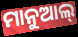
ମାନୁଆଲ୍